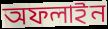
অফলাইন